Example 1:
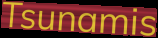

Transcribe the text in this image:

Tsunamis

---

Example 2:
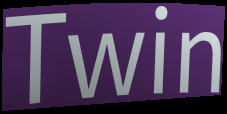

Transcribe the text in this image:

Twin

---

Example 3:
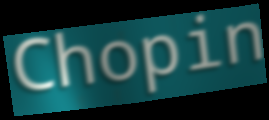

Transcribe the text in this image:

Chopin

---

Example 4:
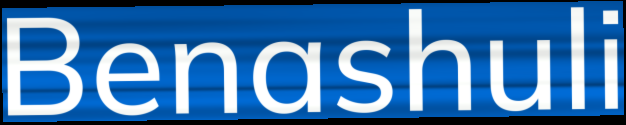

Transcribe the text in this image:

Benashuli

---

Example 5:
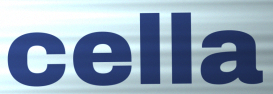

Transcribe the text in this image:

cella